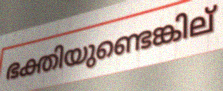
ഭക്തിയുണ്ടെങ്കില്